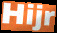
Hijr